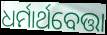
ଧର୍ମାର୍ଥବେତ୍ତା